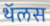
थॅलस